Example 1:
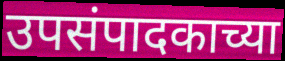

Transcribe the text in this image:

उपसंपादकाच्या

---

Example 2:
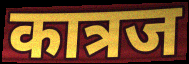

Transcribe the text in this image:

कात्रज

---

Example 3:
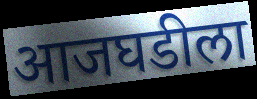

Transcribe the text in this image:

आजघडीला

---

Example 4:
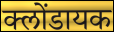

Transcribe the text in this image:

क्लोंडायक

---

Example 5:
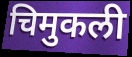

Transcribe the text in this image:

चिमुकली